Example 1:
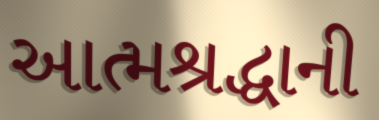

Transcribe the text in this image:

આત્મશ્રદ્ધાની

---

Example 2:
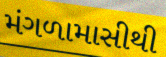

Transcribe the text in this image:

મંગળામાસીથી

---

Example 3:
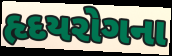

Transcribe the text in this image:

હૃદયરોગના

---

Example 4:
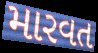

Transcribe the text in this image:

મારવત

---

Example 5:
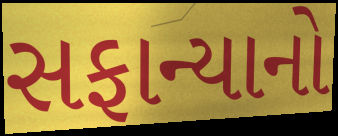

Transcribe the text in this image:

સફાન્યાનો